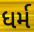
ધર્મ